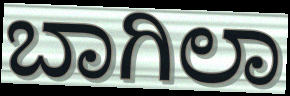
ಬಾಗಿಲಾ